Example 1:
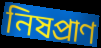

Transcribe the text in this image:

নিষপ্রাণ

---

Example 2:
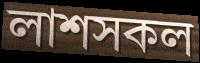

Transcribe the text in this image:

লাশসকল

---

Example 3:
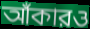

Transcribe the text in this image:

আঁকারও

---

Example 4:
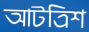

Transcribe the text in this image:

আটত্রিশ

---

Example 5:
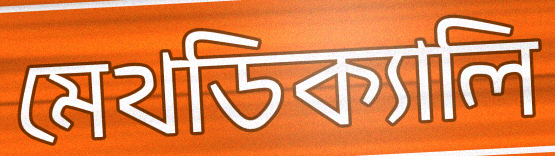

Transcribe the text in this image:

মেথডিক্যালি